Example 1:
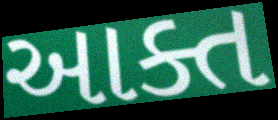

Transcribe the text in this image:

આક્ત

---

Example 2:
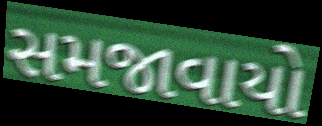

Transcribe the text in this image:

સમજાવાયો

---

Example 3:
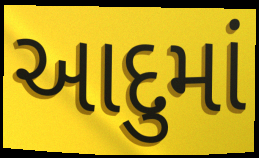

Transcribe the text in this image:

આદુમાં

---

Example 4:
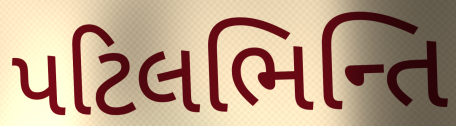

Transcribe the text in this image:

પટિલભિન્તિ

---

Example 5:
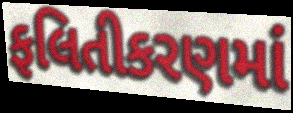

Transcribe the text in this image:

ફલિતીકરણમાં